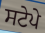
ਸਟੇਪੇ